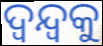
ଦ୍ୱନ୍ଦ୍ୱକୁ